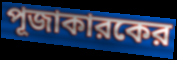
পূজাকারকের